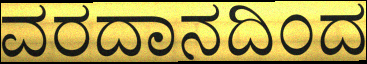
ವರದಾನದಿಂದ